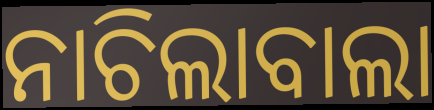
ନାଚିଲାବାଲା